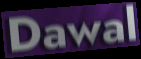
Dawal